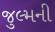
જુલ્મની